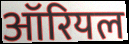
ऑरियल